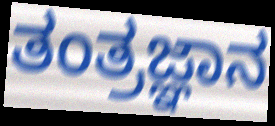
ತಂತ್ರಜ್ಞಾನ